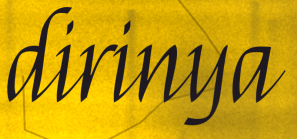
dirinya